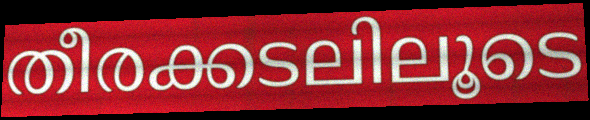
തീരക്കടലിലൂടെ